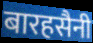
बारहसैनी